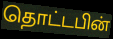
தொட்டபின்